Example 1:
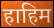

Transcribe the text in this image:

हाहिम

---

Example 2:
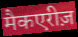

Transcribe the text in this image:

मैकएरीज़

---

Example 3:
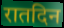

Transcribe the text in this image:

रातदिन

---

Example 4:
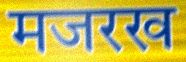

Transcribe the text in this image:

मजरख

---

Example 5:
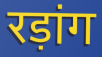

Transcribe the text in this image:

रड़ांग